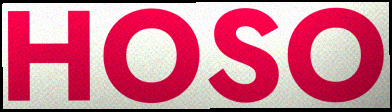
HOSO